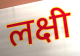
लक्षी